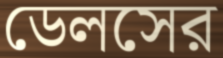
ডেলসের